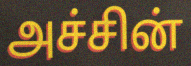
அச்சின்